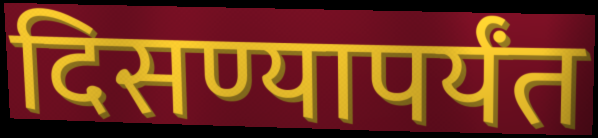
दिसण्यापर्यंत